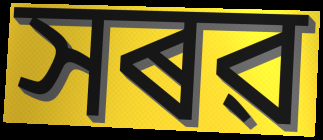
সৰৱ